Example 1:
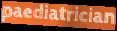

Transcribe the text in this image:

paediatrician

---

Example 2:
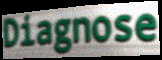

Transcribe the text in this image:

Diagnose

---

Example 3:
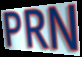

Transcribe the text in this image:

PRN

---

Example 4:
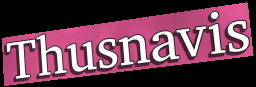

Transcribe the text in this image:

Thusnavis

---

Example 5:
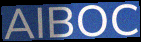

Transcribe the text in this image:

AIBOC